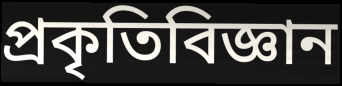
প্রকৃতিবিজ্ঞান